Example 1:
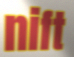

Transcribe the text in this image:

nift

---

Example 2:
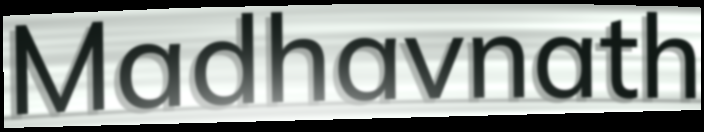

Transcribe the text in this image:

Madhavnath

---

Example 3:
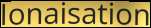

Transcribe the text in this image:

Ionaisation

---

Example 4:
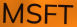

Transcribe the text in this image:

MSFT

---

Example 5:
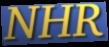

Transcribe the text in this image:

NHR